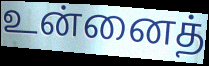
உன்னைத்